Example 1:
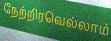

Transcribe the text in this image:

நேற்றிரவெல்லாம்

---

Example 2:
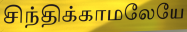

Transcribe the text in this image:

சிந்திக்காமலேயே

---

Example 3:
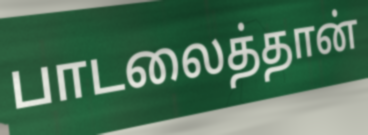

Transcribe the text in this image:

பாடலைத்தான்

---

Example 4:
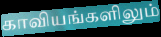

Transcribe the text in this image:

காவியங்களிலும்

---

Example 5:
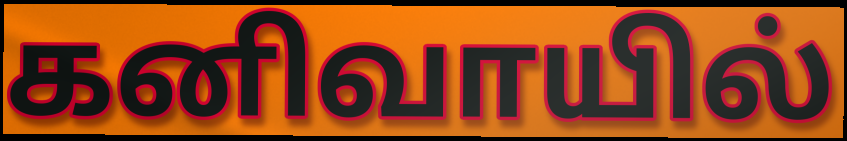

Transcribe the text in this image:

கனிவாயில்